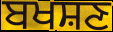
ਬਖਸ਼ਣ